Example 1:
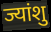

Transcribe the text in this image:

ज्यांशु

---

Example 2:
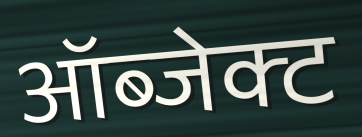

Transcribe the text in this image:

ऑब्‍जेक्‍ट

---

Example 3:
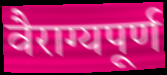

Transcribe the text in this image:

वैराग्यपूर्ण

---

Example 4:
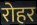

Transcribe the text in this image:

रोहर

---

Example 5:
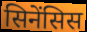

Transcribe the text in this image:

सिनेंसिस